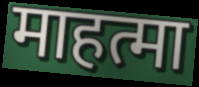
माहत्मा